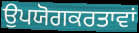
ਉਪਯੋਗਕਰਤਾਵਾਂ